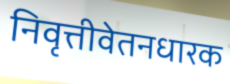
निवृत्तीवेतनधारक